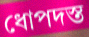
ধোপদস্ত